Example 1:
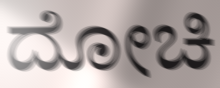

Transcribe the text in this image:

ದೋಚಿ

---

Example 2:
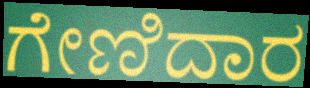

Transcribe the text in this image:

ಗೇಣಿದಾರ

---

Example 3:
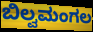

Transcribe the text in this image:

ಬಿಲ್ವಮಂಗಲ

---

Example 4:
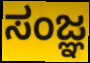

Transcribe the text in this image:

ಸಂಜ್ಞ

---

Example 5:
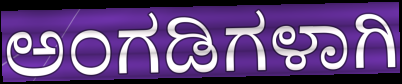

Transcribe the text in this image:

ಅಂಗಡಿಗಳಾಗಿ